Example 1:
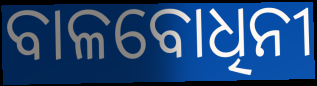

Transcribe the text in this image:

ବାଳବୋଧିନୀ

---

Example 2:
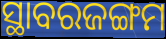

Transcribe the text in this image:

ସ୍ଥାବରଜଙ୍ଗମ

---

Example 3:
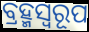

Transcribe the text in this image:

ବ୍ରହ୍ମସ୍ୱରୂପ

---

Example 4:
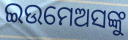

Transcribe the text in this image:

ଇଉମେଅସଙ୍କୁ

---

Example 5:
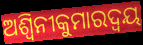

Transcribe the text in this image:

ଅଶ୍ୱିନୀକୁମାରଦ୍ୱୟ